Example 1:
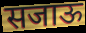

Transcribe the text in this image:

सजाऊ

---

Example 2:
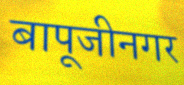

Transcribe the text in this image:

बापूजीनगर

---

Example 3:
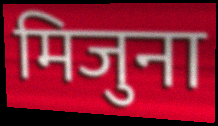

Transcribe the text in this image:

मिजुना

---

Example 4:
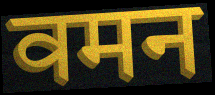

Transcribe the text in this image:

वमन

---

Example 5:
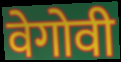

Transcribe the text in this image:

वेगोवी